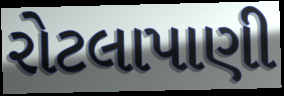
રોટલાપાણી